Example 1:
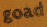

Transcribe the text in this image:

goad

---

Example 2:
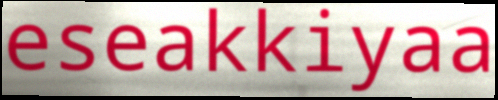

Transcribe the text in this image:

eseakkiyaa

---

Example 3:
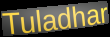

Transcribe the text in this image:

Tuladhar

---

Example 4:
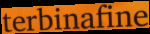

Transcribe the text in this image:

terbinafine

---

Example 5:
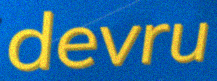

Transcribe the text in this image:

devru